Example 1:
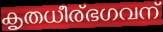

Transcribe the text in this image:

കൃതധീര്ഭഗവന്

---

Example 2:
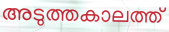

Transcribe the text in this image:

അടുത്തകാലത്ത്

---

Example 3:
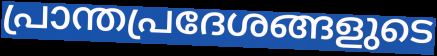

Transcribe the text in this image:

പ്രാന്തപ്രദേശങ്ങളുടെ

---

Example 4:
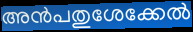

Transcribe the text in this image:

അൻപതുശേക്കേൽ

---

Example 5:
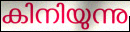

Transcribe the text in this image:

കിനിയുന്നു